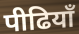
पीढियाँ